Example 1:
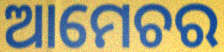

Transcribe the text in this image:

ଆମେଚର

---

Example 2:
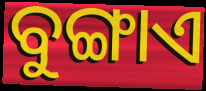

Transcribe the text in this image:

ବୁଙ୍ଗାଏ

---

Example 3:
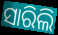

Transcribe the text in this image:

ସାରିଲି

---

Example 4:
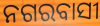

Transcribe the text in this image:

ନଗରବାସୀ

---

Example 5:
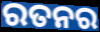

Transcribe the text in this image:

ରତନର